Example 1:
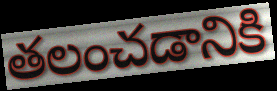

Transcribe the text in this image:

తలంచడానికి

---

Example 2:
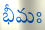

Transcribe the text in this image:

భీమః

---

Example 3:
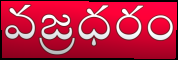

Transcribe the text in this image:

వజ్రధరం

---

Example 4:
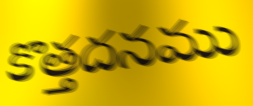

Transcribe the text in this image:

కొత్తదనము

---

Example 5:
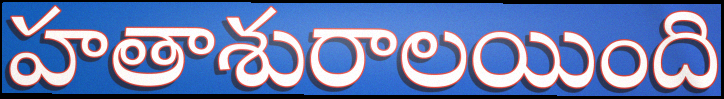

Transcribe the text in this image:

హతాశురాలయింది